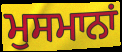
ਮੁਸਮਾਨਾਂ